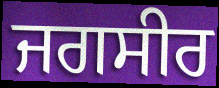
ਜਗਸੀਰ